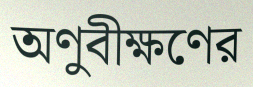
অণুবীক্ষণের